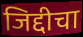
जिद्दीचा